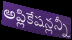
అప్లికేషన్లన్నీ